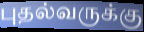
புதல்வருக்கு